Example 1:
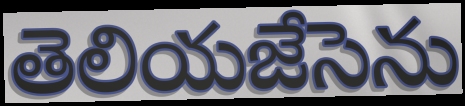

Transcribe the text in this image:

తెలియజేసెను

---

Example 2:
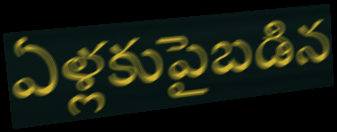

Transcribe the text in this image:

ఏళ్లకుపైబడిన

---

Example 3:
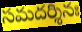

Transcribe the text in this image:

సమదర్శినః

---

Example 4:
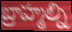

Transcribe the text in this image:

బ్రాహ్మల్ని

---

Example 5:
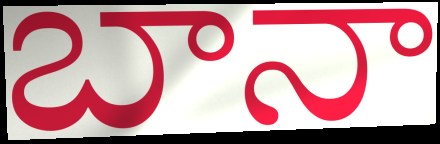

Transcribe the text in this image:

బానా